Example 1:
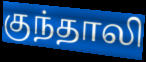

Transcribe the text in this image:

குந்தாலி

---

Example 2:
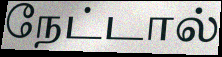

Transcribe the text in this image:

நேட்டால்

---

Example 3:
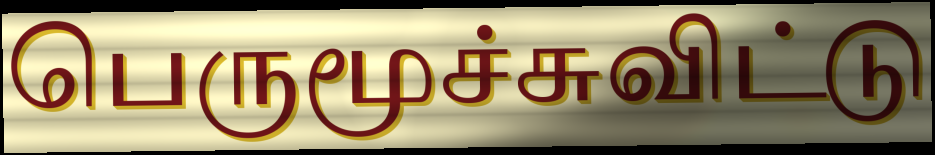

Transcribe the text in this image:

பெருமூச்சுவிட்டு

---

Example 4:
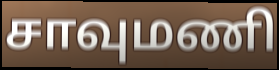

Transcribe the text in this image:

சாவுமணி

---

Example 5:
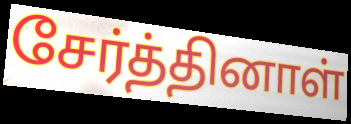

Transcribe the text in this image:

சேர்த்தினாள்